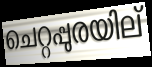
ചെറ്റപ്പുരയില്